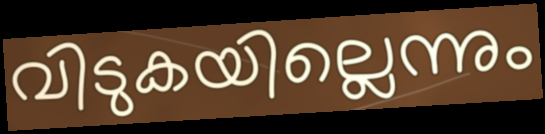
വിടുകയില്ലെന്നും